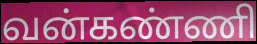
வன்கண்ணி